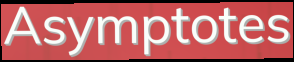
Asymptotes